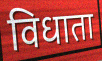
विधाता